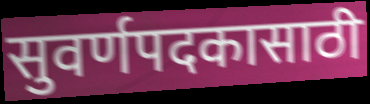
सुवर्णपदकासाठी